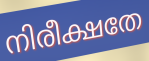
നിരീക്ഷതേ